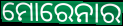
ମୋରେନାର